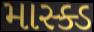
માસ્ક્ડ